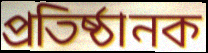
প্ৰতিষ্ঠানক